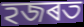
হজৰত